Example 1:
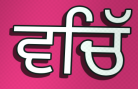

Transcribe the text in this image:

ਵਚਿੱ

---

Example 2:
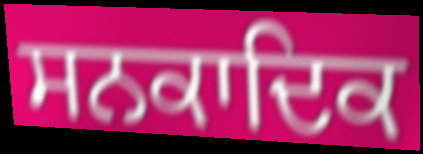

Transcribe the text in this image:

ਸਨਕਾਦਿਕ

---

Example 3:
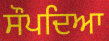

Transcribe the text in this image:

ਸੌਪਦਿਆ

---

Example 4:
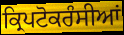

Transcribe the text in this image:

ਕ੍ਰਿਪਟੋਕਰੰਸੀਆਂ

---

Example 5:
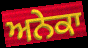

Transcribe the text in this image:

ਅਨੇਕਾ